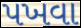
પખવા